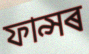
ফান্সৰ